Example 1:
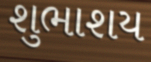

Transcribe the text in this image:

શુભાશય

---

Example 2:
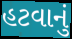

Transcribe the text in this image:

હટવાનું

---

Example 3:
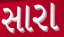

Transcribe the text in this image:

સારા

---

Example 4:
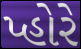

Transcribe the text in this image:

પ્હોરે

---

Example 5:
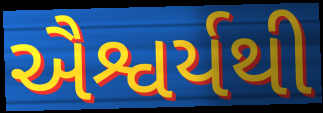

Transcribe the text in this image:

ઐશ્વર્યથી